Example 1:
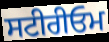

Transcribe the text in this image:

ਸਟੀਰੀਓਮ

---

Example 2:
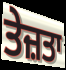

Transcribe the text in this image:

ਤੇਜ਼ਤਾ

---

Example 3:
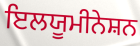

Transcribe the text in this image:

ਇਲਯੂਮੀਨੇਸ਼ਨ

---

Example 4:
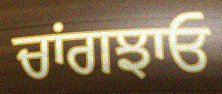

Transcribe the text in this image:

ਚਾਂਗਝਾਓ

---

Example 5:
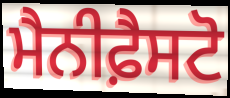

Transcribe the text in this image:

ਮੈਨੀਫ਼ੈਸਟੋ